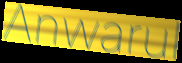
Anwarul